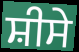
ਸ਼ੀਸੇ